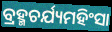
ବ୍ରହ୍ମଚର୍ଯ୍ୟମହିଂସା